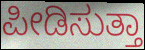
ಪೀಡಿಸುತ್ತಾ